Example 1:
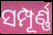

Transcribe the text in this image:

ସମ୍ପୂର୍ଣ୍ଣ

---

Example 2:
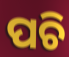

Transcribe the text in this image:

ପଚି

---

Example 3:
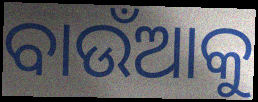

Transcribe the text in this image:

ବାଉଁଆକୁ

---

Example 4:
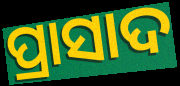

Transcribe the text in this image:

ପ୍ରାସାଦ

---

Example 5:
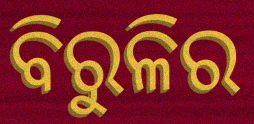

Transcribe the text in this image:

ବିରୁଳିର